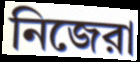
নিজেরা